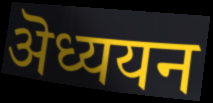
ऄध्ययन